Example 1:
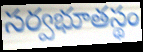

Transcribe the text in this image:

సర్వభూతస్థం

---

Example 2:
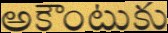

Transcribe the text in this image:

అకౌంటుకు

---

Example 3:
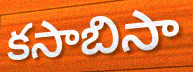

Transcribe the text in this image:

కసాబిసా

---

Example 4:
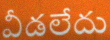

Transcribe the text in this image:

వీడలేదు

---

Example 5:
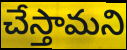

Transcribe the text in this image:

చేస్తామని